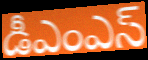
డీఎంఎస్